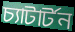
চ্যাটার্টন